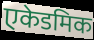
एकेडमिक